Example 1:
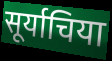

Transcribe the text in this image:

सूर्याचिया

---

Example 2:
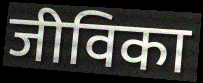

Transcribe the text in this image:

जीविका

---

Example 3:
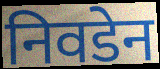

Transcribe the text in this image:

निवडेन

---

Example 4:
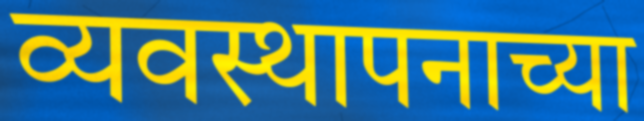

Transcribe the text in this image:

व्यवस्थापनाच्या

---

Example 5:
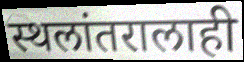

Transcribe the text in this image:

स्थलांतरालाही